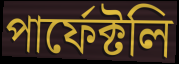
পার্ফেক্টলি